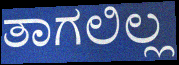
ತಾಗಲಿಲ್ಲ